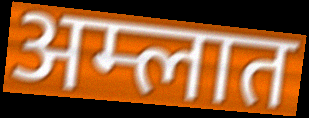
अम्लात